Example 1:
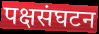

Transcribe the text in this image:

पक्षसंघटन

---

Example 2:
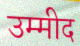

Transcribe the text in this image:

उम्मीद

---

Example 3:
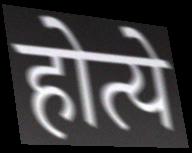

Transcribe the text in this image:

होत्ये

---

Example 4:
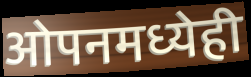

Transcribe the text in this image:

ओपनमध्येही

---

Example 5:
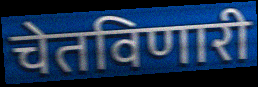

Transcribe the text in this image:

चेतविणारी